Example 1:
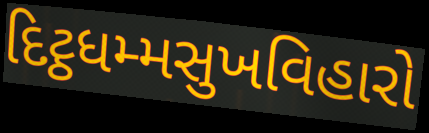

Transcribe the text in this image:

દિટ્ઠધમ્મસુખવિહારો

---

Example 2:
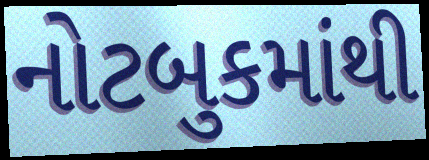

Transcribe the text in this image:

નોટબુકમાંથી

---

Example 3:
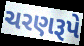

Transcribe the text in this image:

ચરણરૂપે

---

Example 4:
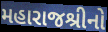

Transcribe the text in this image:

મહારાજશ્રીનો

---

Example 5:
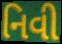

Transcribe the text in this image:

નિવી